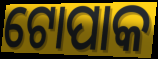
ଟୋପାକ